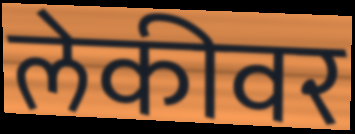
लेकीवर